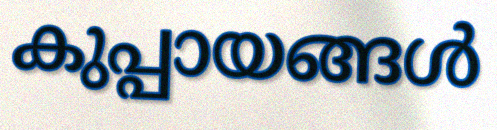
കുപ്പായങ്ങൾ